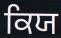
ਕਿਯ